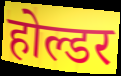
होल्डर